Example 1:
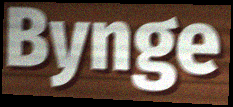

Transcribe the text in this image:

Bynge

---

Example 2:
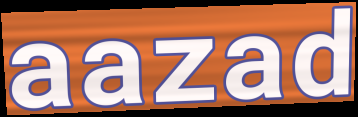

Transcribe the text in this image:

aazad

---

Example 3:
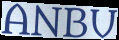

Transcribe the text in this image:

ANBU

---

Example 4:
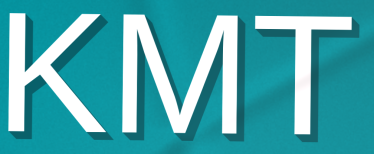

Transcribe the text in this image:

KMT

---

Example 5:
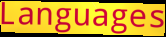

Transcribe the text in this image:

Languages